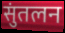
सुंतलन